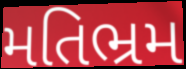
મતિભ્રમ